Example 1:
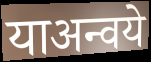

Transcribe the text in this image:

याअन्वये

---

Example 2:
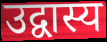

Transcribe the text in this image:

उद्वास्य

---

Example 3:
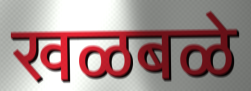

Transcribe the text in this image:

खळबळे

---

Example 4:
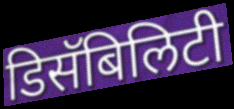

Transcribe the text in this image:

डिसॅबिलिटी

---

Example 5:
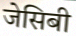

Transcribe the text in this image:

जेसिबी